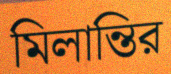
মিলান্তির